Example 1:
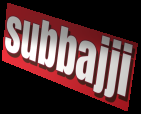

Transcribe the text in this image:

subbajji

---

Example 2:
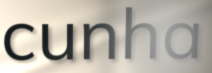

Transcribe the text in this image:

cunha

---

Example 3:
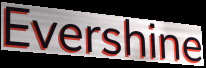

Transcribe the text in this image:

Evershine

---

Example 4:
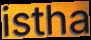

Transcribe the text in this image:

istha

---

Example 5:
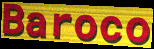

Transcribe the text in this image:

Baroco